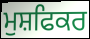
ਮੁਸ਼ਫਿਕਰ